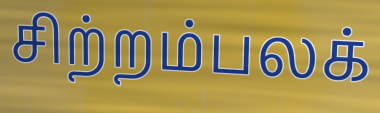
சிற்றம்பலக்